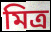
মিত্র